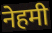
नेहमी